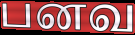
பனவ